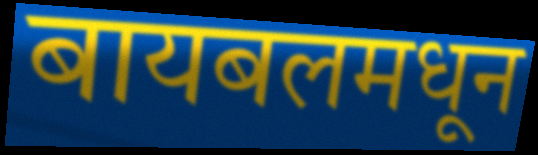
बायबलमधून